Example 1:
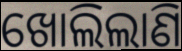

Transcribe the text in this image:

ଖୋଲିଲାଣି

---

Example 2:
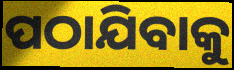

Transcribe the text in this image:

ପଠାଯିବାକୁ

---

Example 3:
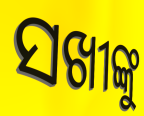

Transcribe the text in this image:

ସଖୀଙ୍କୁ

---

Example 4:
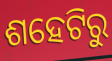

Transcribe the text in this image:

ଶହେଟିରୁ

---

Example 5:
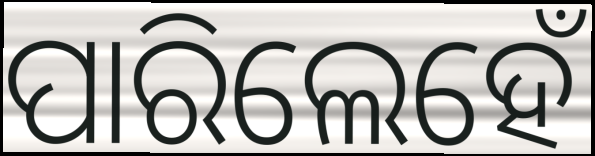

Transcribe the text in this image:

ପାରିଲେହେଁ